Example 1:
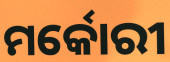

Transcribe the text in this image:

ମର୍କୋରୀ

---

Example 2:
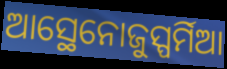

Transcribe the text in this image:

ଆସ୍ଥେନୋଜୁସ୍ପର୍ମିଆ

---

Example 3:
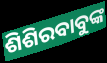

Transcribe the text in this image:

ଶିଶିରବାବୁଙ୍କ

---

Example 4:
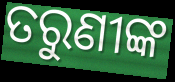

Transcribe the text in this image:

ତରୁଣୀଙ୍କ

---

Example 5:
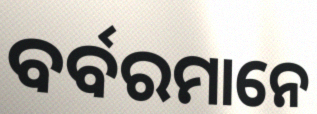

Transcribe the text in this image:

ବର୍ବରମାନେ